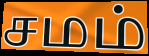
சமம்